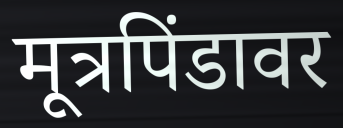
मूत्रपिंडावर